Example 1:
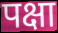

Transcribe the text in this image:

पक्षा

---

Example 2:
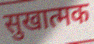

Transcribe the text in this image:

सुखात्मक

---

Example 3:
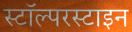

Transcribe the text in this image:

स्टॉल्परस्टाइन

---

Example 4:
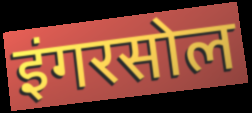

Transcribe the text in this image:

इंगरसोल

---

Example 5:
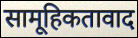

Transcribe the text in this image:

सामूहिकतावाद